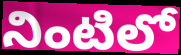
నింటిలో